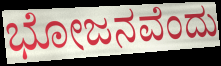
ಭೋಜನವೆಂದು